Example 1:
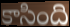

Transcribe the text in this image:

కాసింది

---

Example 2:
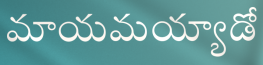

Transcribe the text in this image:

మాయమయ్యాడో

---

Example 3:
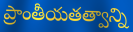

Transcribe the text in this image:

ప్రాంతీయతత్వాన్ని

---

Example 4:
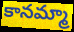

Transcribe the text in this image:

కానమ్మా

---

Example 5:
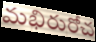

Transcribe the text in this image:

మభిరురోచ